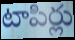
టాపిర్లు